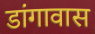
डांगावास